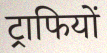
ट्राफियों